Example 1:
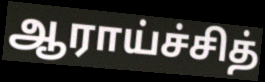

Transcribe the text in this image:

ஆராய்ச்சித்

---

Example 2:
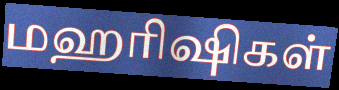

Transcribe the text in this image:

மஹரிஷிகள்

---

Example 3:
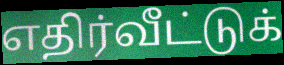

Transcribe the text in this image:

எதிர்வீட்டுக்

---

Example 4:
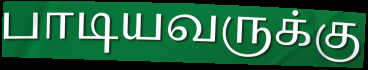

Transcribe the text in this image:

பாடியவருக்கு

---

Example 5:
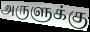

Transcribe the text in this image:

அருளுக்கு